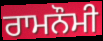
ਰਾਮਨੌਮੀ